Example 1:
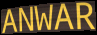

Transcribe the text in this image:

ANWAR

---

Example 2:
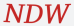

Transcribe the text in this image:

NDW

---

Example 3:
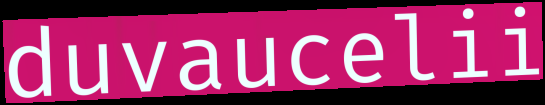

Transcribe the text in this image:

duvaucelii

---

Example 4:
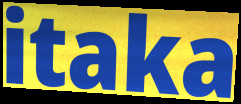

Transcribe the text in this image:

itaka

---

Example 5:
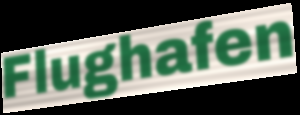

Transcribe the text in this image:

Flughafen